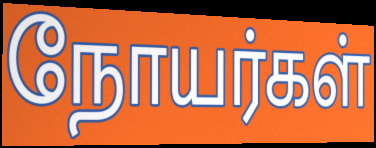
நோயர்கள்